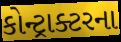
કોન્ટ્રાક્ટરના